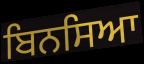
ਬਿਨਸਿਆ